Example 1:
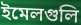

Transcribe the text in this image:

ইমেলগুলি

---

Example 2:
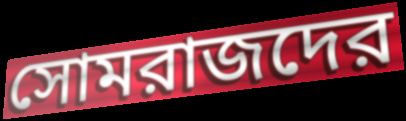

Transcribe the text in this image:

সোমরাজদের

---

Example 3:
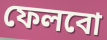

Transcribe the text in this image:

ফেলবো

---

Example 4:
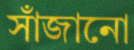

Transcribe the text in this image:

সাঁজানো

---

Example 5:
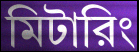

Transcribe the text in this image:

মিটারিং